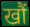
खौं